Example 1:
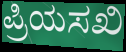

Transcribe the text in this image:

ಪ್ರಿಯಸಖಿ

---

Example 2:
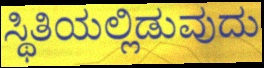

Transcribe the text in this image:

ಸ್ಥಿತಿಯಲ್ಲಿಡುವುದು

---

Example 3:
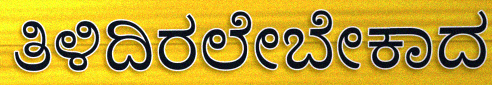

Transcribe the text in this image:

ತಿಳಿದಿರಲೇಬೇಕಾದ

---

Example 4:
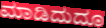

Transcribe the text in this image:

ಮಾಡಿದುದೂ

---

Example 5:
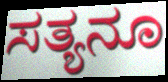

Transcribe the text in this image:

ಸತ್ಯನೂ